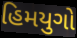
હિમયુગો